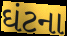
ઘંટના